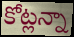
కోట్లన్నా